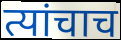
त्यांचाच